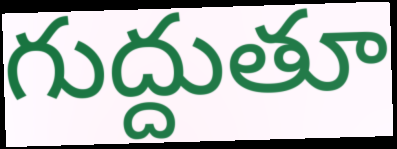
గుద్దుతూ